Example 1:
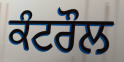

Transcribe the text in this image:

ਕੰਟਰੌਲ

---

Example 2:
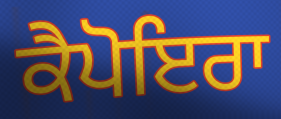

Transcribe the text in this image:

ਕੈਪੋਇਰਾ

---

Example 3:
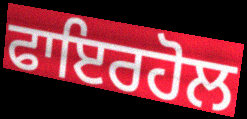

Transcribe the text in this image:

ਫਾਇਰਹੋਲ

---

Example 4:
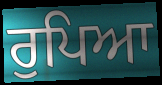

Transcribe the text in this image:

ਰੁਪਿਆ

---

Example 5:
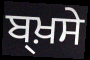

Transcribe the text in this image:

ਬ੍ਖ਼ਸੇ